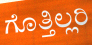
ಗೊತ್ತಿಲ್ಲರಿ